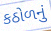
કઠોળનું